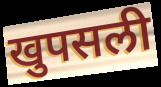
खुपसली